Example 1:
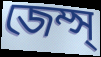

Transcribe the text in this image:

জেম্স্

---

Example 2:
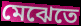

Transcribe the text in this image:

মেঝেতে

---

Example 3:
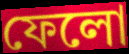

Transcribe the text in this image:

ফেলো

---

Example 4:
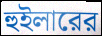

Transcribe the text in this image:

হুইলারের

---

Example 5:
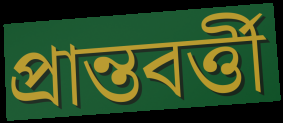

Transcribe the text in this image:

প্রান্তবর্ত্তী